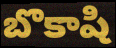
బొకాషి